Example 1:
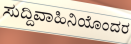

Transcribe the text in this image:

ಸುದ್ದಿವಾಹಿನಿಯೊಂದರ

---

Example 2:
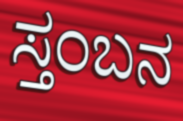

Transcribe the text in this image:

ಸ್ತಂಬನ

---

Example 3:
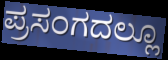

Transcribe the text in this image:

ಪ್ರಸಂಗದಲ್ಲೂ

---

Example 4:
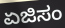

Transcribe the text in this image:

ಏಜಿಸಂ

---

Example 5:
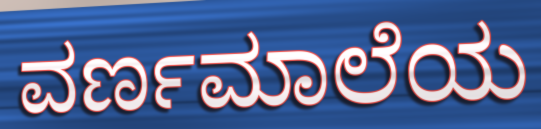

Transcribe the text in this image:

ವರ್ಣಮಾಲೆಯ